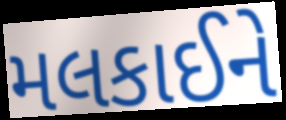
મલકાઈને